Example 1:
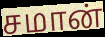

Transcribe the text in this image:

சமான்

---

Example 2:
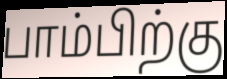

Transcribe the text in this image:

பாம்பிற்கு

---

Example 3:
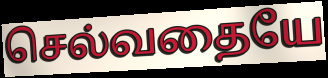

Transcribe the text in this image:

செல்வதையே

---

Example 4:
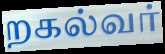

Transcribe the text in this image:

றகல்வர்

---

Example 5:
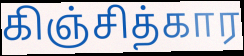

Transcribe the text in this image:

கிஞ்சித்கார